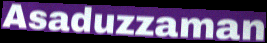
Asaduzzaman